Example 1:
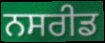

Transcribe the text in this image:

ਨਸਰੀਡ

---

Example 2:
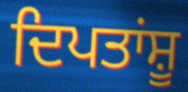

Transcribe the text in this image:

ਦਿਪਤਾਂਸ਼ੂ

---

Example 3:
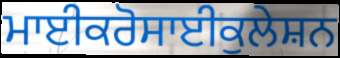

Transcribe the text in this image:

ਮਾਈਕਰੋਸਾਈਕੁਲੇਸ਼ਨ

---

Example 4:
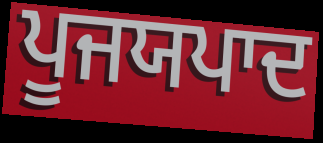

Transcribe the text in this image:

ਪੂਜਯਪਾਦ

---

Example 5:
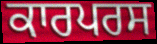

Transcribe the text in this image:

ਕਾਰਪਰਸ